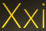
Xxi